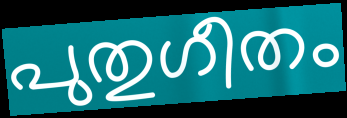
പുതുഗീതം